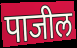
पाजील